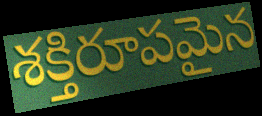
శక్తిరూపమైన